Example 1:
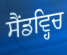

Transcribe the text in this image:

ਸੈਂਡਵ੍ਹਿਚ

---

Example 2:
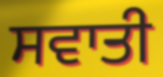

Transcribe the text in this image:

ਸਵਾਤੀ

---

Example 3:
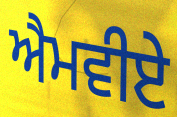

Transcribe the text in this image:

ਐਮਵੀਏ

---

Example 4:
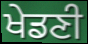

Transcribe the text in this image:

ਖੇਡਣੀ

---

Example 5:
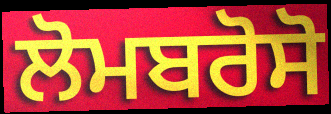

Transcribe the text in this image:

ਲੋਮਬਰੋਸੋ